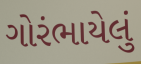
ગોરંભાયેલું